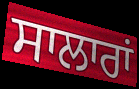
ਸਾਲਾਰਾਂ